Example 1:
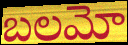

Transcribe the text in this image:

బలమో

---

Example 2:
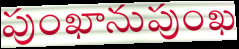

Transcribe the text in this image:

పుంఖానుపుంఖ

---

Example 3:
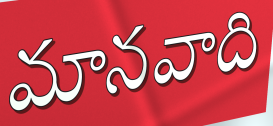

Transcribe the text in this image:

మానవాది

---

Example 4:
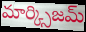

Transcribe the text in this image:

మార్క్సిజమ్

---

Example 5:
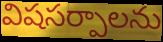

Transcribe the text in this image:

విషసర్పాలను